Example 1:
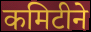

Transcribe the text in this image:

कमिटीने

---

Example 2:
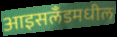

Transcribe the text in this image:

आइसलँडमधील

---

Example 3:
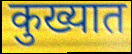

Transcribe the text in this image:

कुख्यात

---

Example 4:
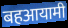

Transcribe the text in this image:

बहआयामी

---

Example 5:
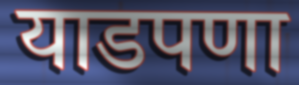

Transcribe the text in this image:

याडपणा